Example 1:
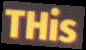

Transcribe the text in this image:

THis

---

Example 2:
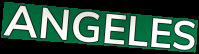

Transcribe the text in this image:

ANGELES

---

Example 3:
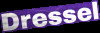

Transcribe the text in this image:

Dressel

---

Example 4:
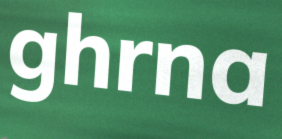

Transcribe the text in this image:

ghrna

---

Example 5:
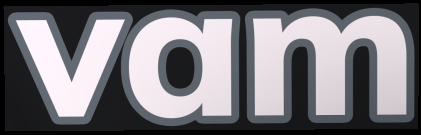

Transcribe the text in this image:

vam